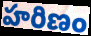
హరిణం